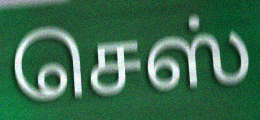
செஸ்